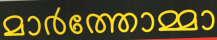
മാർത്തോമ്മാ